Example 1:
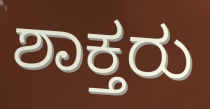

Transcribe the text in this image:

ಶಾಕ್ತರು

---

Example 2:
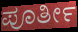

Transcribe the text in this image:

ಪೂರ್ತೀ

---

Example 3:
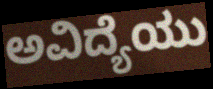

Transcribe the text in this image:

ಅವಿದ್ಯೆಯು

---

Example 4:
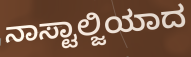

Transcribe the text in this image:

ನಾಸ್ಟಾಲ್ಜಿಯಾದ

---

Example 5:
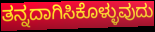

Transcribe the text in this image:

ತನ್ನದಾಗಿಸಿಕೊಳ್ಳುವುದು